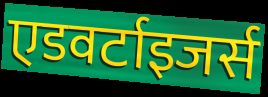
एडवर्टाइजर्स